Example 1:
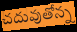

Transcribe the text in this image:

చదువుతోన్న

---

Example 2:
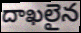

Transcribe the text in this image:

దాఖలైన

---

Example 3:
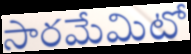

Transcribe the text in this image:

సారమేమిటో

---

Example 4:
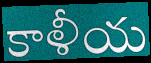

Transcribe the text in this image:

కాళీయ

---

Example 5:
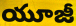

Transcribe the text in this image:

యూజీ